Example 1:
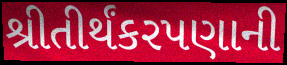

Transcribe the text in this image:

શ્રીતીર્થંકરપણાની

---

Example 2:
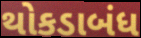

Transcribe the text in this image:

થોકડાબંધ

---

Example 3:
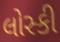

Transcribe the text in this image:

લોસ્કી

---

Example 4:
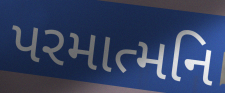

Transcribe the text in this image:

પરમાત્મનિ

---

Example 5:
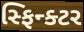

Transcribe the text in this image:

સ્ફિન્ક્ટર